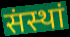
संस्थां